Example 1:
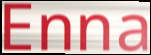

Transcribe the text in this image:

Enna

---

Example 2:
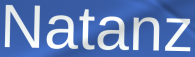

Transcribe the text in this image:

Natanz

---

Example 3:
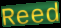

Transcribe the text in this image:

Reed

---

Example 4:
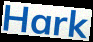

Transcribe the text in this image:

Hark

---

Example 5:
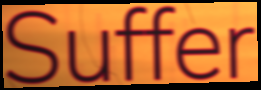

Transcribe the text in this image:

Suffer